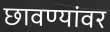
छावण्यांवर